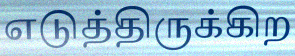
எடுத்திருக்கிற